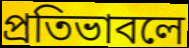
প্রতিভাবলে